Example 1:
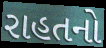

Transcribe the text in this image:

રાહતનો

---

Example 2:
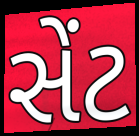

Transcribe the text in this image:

સેંટ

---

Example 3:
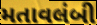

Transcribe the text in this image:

મતાવલંબી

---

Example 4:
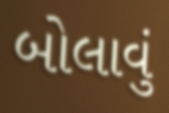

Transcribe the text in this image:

બોલાવું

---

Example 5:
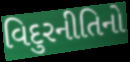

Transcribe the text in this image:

વિદુરનીતિનો